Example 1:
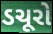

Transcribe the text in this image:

ડચૂરો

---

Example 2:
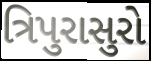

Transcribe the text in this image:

ત્રિપુરાસુરો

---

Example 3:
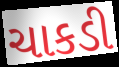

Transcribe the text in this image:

ચાકડી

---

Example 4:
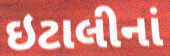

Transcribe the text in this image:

ઇટાલીનાં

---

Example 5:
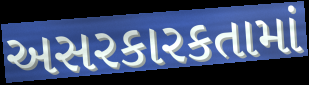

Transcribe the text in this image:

અસરકારકતામાં